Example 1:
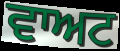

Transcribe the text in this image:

ਵਾਅਟ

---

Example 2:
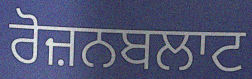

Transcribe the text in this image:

ਰੋਜ਼ਨਬਲਾਟ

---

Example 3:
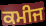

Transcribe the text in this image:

ਕਮੀਜ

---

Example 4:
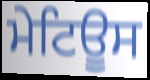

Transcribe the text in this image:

ਮੇਟਿਊਸ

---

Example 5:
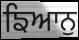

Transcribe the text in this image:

ਙਿਆਨੁ